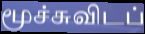
மூச்சுவிடப்